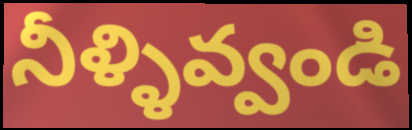
నీళ్ళివ్వండి